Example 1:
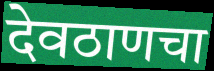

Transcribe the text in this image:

देवठाणचा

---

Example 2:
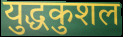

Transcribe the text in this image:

युद्धकुशल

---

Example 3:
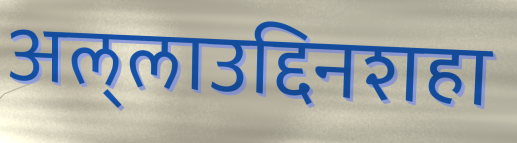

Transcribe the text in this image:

अल्लाउद्दिनशहा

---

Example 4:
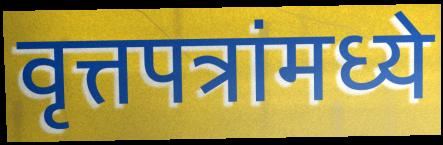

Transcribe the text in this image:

वृत्तपत्रांमध्ये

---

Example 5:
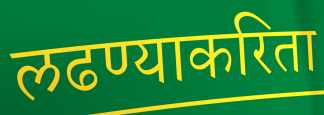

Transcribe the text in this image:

लढण्याकरिता